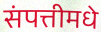
संपत्तीमधे